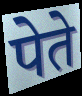
पेते